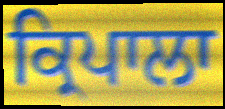
ਕ੍ਰਿਪਾਲਾ